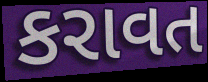
કરાવત